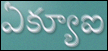
ఏక్యూఐ